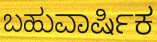
ಬಹುವಾರ್ಷಿಕ